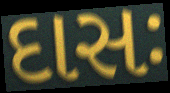
દાસઃ